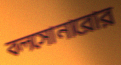
বলসোনারোর